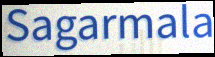
Sagarmala